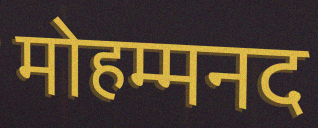
मोहम्मनद